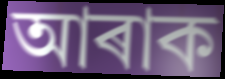
আৰাক